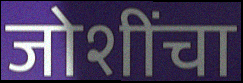
जोशींचा